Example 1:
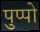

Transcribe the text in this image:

पुप्पो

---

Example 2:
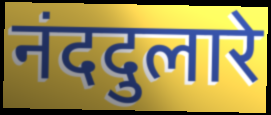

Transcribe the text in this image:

नंददुलारे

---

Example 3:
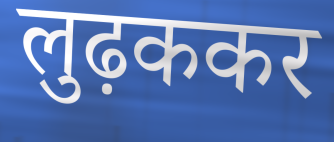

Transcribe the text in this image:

लुढ़ककर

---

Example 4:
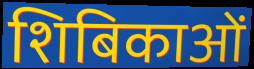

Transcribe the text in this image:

शिबिकाओं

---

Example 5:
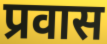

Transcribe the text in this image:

प्रवास